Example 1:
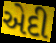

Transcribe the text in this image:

એદી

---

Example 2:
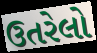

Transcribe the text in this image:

ઉતરેલો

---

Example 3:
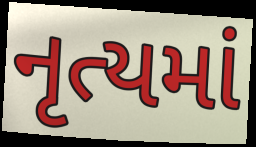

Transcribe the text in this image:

નૃત્યમાં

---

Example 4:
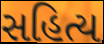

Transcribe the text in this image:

સહિત્ય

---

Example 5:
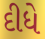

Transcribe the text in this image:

દીધે